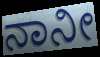
ನಾನೀ